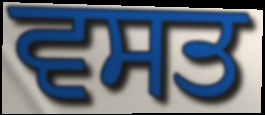
ਵਸਤ